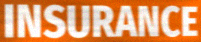
INSURANCE